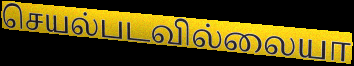
செயல்படவில்லையா